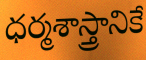
ధర్మశాస్త్రానికే